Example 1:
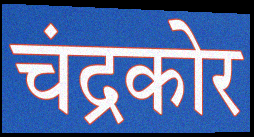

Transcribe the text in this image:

चंद्रकोर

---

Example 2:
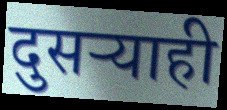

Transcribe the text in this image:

दुसऱ्याही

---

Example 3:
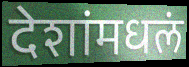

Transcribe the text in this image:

देशांमधलं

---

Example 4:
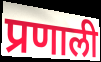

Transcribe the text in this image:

प्रणाली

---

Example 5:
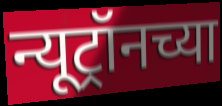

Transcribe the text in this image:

न्यूट्रॉनच्या